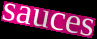
sauces